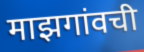
माझगांवची